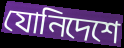
যোনিদেশে